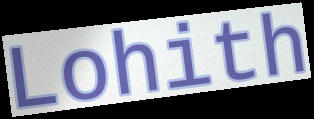
Lohith